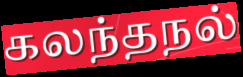
கலந்தநல்